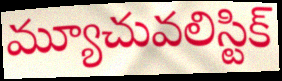
మ్యూచువలిస్టిక్